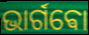
ଭାର୍ଗଵୋ